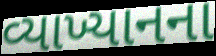
વ્યાખ્યાનના